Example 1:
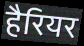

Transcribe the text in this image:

हैरियर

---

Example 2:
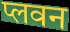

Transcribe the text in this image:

प्लवन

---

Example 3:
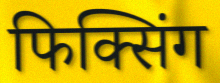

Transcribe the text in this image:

फिक्सिंग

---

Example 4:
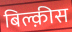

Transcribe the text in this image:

बिल्क़ीस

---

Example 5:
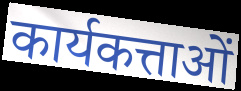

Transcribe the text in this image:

कार्यकत्ताओं